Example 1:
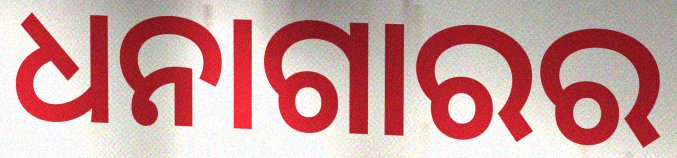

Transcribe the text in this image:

ଧନାଗାରର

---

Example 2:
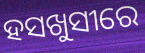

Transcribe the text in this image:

ହସଖୁସୀରେ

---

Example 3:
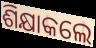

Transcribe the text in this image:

ଶିକ୍ଷାକଲେ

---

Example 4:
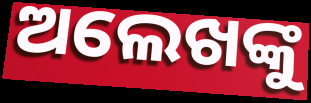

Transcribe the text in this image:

ଅଲେଖଙ୍କୁ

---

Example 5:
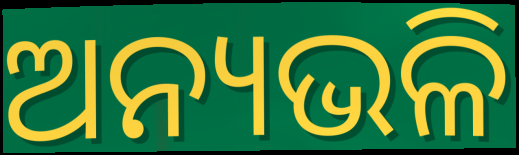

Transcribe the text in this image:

ଅନ୍ୟଭଳି